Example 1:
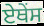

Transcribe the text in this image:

ਏਥੇੰਸ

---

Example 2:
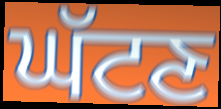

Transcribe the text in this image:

ਘੱਟਣ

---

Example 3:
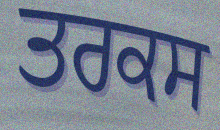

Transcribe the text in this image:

ਤਰਕਸ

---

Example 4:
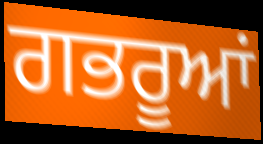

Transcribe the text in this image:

ਗਭਰੂਆਂ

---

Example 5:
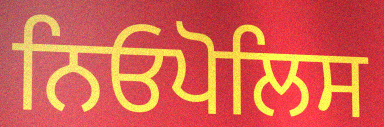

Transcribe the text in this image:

ਨਿਓਪੋਲਿਸ